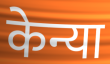
केन्या